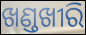
ଖଣ୍ଡଖୀରି